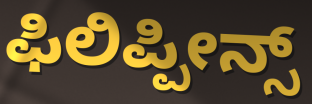
ಫಿಲಿಪ್ಪೀನ್ಸ್